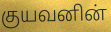
குயவனின்